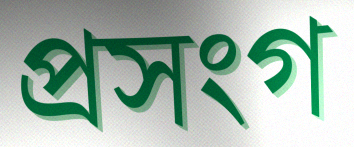
প্রসংগ